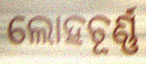
ଲୋହଚୂର୍ଣ୍ଣ